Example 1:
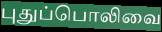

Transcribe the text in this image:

புதுப்பொலிவை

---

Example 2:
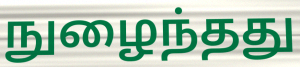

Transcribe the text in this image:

நுழைந்தது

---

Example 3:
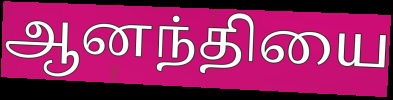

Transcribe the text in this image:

ஆனந்தியை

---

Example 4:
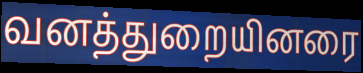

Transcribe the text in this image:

வனத்துறையினரை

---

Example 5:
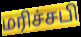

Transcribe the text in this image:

மரிச்சபி